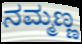
ನಮ್ಮಣ್ಣ